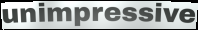
unimpressive